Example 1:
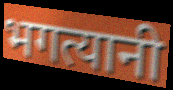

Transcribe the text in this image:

भगत्यानी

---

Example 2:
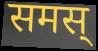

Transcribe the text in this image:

समस्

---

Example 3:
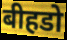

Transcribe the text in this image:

बीहडो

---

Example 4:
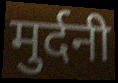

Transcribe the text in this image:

मुर्दनी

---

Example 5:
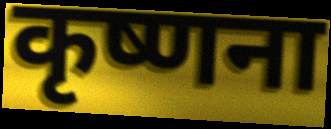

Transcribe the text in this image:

कृष्णना